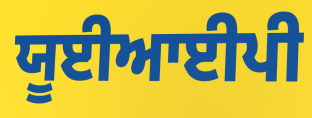
ਯੂਈਆਈਪੀ